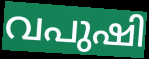
വപുഷി